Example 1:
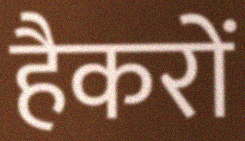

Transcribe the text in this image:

हैकरों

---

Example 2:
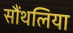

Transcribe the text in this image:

सौंथलिया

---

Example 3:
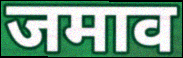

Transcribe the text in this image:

जमाव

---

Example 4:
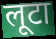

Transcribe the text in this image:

लूटा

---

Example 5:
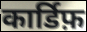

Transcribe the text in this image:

कार्डिफ़